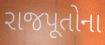
રાજપૂતોના